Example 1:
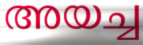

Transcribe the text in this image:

അയച്ച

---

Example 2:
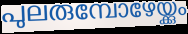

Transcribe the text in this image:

പുലരുമ്പോഴേയ്ക്കും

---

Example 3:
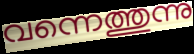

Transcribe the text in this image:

വന്നെത്തുന്നു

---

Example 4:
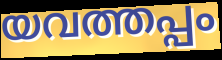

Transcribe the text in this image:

യവത്തപ്പം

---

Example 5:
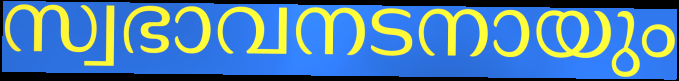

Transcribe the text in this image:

സ്വഭാവനടനായും